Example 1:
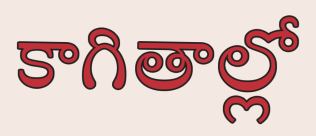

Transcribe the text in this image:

కాగితాల్లో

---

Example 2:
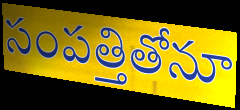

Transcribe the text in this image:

సంపత్తితోనూ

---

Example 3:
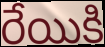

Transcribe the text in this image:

రేయికి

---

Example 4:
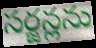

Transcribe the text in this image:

సర్జన్లను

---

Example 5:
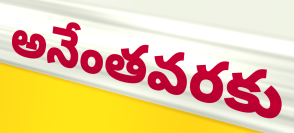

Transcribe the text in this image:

అనేంతవరకు